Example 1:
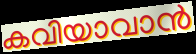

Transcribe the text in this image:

കവിയാവാൻ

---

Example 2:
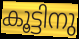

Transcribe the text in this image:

കൂട്ടിനു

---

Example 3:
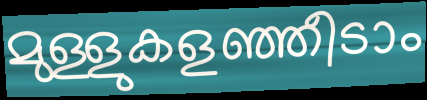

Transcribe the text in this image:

മുള്ളുകളഞ്ഞീടാം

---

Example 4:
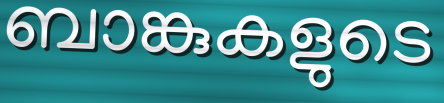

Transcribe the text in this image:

ബാങ്കുകളുടെ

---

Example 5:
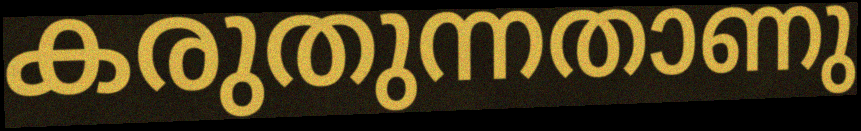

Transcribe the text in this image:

കരുതുന്നതാണു